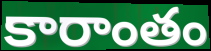
కారాంతం